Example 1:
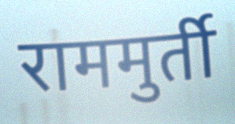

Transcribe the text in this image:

राममुर्ती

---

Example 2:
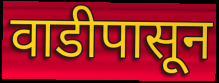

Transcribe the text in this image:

वाडीपासून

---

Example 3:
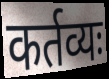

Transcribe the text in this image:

कर्तव्यः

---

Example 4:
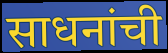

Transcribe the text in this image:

साधनांची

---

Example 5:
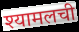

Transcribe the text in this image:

श्यामलची